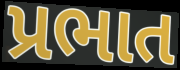
પ્રભાત